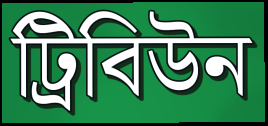
ট্রিবিউন